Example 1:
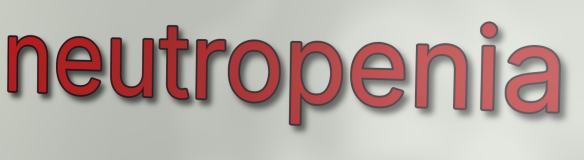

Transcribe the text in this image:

neutropenia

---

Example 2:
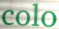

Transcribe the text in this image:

colo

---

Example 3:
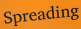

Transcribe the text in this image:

Spreading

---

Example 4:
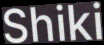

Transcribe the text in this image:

Shiki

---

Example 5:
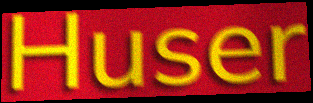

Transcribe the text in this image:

Huser